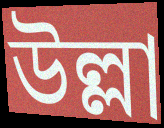
উল্লা